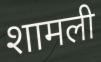
शामली